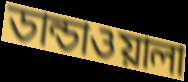
ডান্ডাওয়ালা